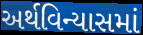
અર્થવિન્યાસમાં